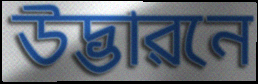
উদ্ভাৱনে